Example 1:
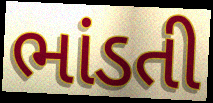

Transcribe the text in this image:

ભાંડતી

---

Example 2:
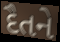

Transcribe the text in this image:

દૈતને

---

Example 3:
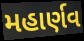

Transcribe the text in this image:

મહાર્ણવ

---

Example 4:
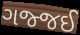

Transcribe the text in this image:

ગજ્જઈ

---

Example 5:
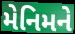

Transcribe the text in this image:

મેનિમને